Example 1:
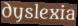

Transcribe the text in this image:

dyslexia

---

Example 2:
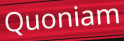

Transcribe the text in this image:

Quoniam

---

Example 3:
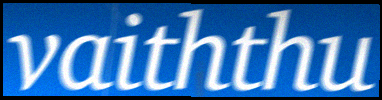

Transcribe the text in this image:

vaiththu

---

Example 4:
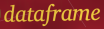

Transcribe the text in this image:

dataframe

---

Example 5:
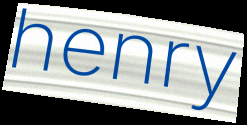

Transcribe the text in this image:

henry